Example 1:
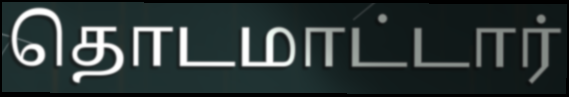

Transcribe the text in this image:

தொடமாட்டார்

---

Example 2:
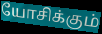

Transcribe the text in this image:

யோசிக்கும்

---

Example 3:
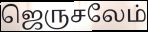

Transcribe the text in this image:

ஜெருசலேம்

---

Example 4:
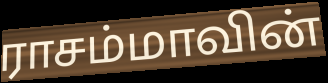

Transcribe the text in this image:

ராசம்மாவின்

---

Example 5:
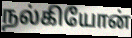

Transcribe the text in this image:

நல்கியோன்